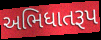
અભિધાતરૂપ